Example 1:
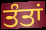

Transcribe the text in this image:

ਤੰਤਾਂ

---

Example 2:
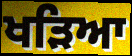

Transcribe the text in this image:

ਖੜਿਆ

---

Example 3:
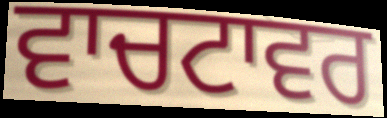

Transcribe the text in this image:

ਵਾਚਟਾਵਰ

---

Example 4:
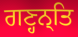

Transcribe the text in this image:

ਗਣ੍ਹਨ੍ਤਿ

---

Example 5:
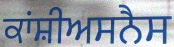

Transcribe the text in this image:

ਕਾਂਸ਼ੀਅਸਨੈਸ